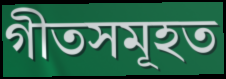
গীতসমূহত